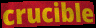
crucible